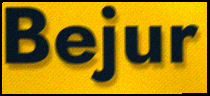
Bejur